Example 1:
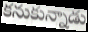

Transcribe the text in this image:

కనుకున్నాడు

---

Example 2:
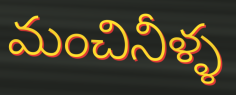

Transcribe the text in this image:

మంచినీళ్ళ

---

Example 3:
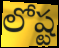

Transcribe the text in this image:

లోష్ట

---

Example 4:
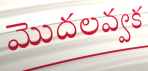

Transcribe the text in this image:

మొదలవ్వక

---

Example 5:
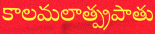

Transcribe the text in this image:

కాలమలాత్ప్రపాతు